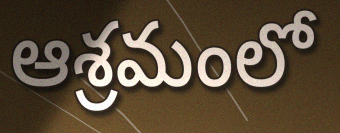
ఆశ్రమంలో